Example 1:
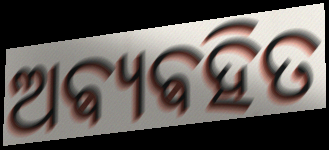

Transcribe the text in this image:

ଅଵ୍ୟଵହିତ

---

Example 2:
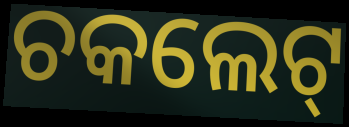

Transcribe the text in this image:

ଚକଲେଟ୍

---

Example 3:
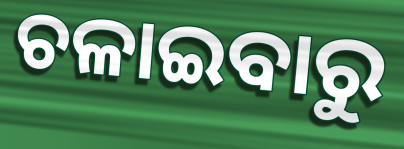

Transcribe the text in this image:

ଚଳାଇବାରୁ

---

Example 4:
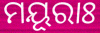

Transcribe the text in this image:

ମୟୂରାଃ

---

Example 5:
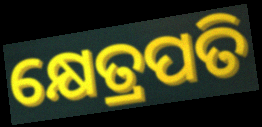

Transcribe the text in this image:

କ୍ଷେତ୍ରପତି